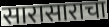
सारासाराचा